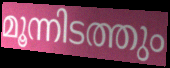
മൂന്നിടത്തും